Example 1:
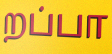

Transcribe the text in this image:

றப்பா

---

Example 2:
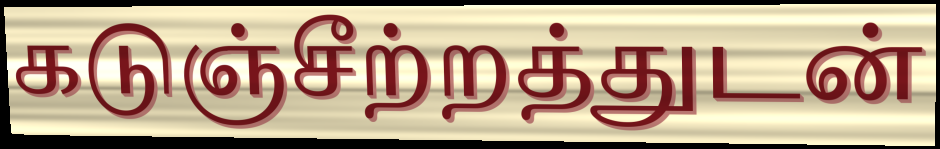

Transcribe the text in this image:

கடுஞ்சீற்றத்துடன்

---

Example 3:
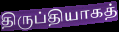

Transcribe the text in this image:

திருப்தியாகத்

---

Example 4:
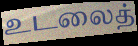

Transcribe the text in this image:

உடலைத்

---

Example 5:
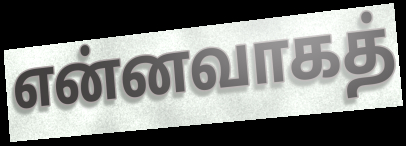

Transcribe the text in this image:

என்னவாகத்